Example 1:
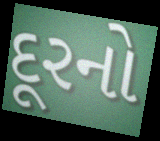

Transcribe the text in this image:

દૂરનો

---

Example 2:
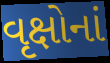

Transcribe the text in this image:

વૃક્ષોનાં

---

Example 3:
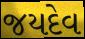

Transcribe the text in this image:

જયદેવ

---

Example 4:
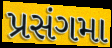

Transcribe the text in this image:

પ્રસંગમા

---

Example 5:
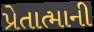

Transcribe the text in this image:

પ્રેતાત્માની